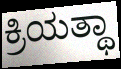
ಕ್ರಿಯತ್ಥಾ